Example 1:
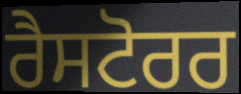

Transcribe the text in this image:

ਰੈਸਟੋਰਰ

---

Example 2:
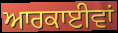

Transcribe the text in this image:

ਆਰਕਾਈਵਾਂ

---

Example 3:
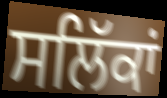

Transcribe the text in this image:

ਸਲਿੱਕਾਂ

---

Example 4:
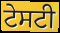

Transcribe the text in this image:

ਟੇਸਟੀ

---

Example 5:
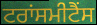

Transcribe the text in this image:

ਟਰਾਂਸਮੀਟੈਂਸ